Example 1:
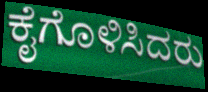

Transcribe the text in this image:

ಕೈಗೊಳಿಸಿದರು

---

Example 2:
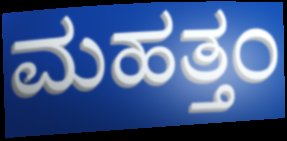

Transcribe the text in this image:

ಮಹತ್ತಂ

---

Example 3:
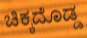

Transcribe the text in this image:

ಚಿಕ್ಕದೊಡ್ಡ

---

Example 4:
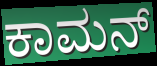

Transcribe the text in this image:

ಕಾಮನ್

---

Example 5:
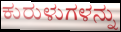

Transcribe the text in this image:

ಕುರುಳುಗಳನ್ನು